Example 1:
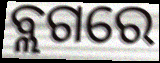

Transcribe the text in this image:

ବ୍ଲଗରେ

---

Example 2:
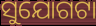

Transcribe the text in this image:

ସୁଯୋଗଟା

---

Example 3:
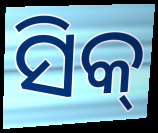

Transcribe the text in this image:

ସିକ୍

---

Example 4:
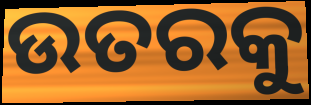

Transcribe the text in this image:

ଉତରକୁ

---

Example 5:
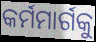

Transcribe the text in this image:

କର୍ମମାର୍ଗକୁ